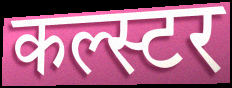
कल्स्टर